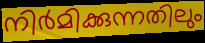
നിർമിക്കുന്നതിലും